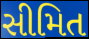
સીમિત